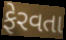
ફેરવતા